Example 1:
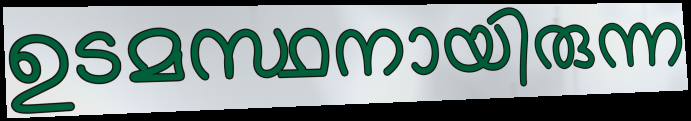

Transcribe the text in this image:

ഉടമസ്ഥനായിരുന്ന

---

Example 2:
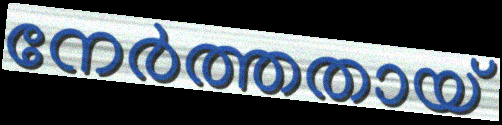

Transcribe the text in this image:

നേർത്തതായ്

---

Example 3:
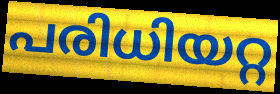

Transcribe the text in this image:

പരിധിയറ്റ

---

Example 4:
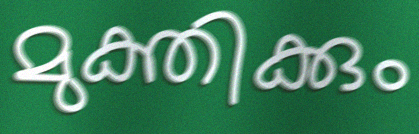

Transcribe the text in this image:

മുക്തിക്കും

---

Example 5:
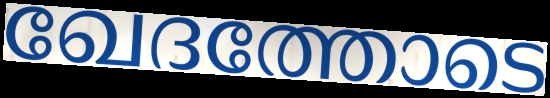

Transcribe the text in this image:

ഖേദത്തോടെ